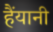
हैंयानी